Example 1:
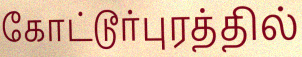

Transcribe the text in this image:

கோட்டூர்புரத்தில்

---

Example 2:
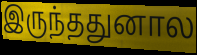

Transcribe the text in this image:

இருந்ததுனால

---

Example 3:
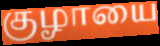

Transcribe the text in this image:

குழாயை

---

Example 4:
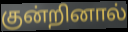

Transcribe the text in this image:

குன்றினால்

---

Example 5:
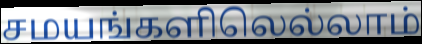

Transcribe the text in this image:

சமயங்களிலெல்லாம்